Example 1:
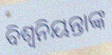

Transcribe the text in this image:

ବିଶ୍ବନିୟନ୍ତାଙ୍କ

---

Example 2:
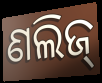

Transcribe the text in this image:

ଣଲିଜ୍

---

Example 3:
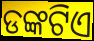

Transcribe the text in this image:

ଡଙ୍କଟିଏ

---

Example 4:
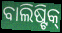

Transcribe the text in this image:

ବାଲିଷ୍ଟିକ୍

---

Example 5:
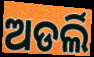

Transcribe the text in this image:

ଅଡର୍ଲି